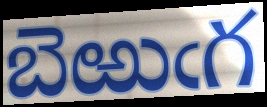
బెఱుఁగ